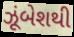
ઝૂંબેશથી